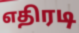
எதிரடி